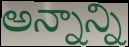
అన్నాన్ని